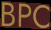
BPC